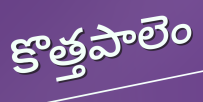
కొత్తపాలెం